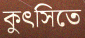
কুৎসিতে